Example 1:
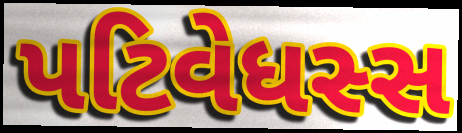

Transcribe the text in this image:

પટિવેધસ્સ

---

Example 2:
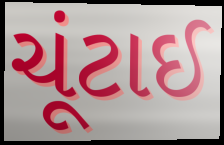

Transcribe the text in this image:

ચૂંટાઈ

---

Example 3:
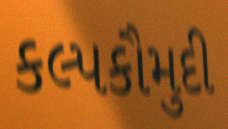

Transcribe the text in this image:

કલ્પકૌમુદી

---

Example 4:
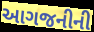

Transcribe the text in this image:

આગજનીની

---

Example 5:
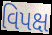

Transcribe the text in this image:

વિપક્ષ